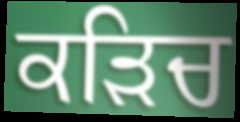
ਕੜਿਚ